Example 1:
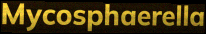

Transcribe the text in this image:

Mycosphaerella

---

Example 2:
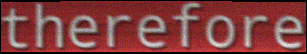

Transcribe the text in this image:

therefore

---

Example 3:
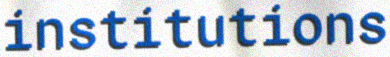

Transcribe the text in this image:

institutions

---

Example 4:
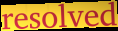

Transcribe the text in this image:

resolved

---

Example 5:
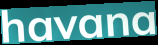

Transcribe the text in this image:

havana